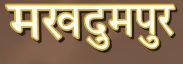
मखदुमपुर